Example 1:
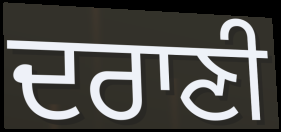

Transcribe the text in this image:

ਦਰਾਣੀ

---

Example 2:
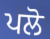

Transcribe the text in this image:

ਪਲੋ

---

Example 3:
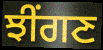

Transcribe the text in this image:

ਝੀਂਗਣ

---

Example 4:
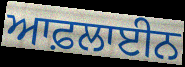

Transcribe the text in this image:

ਆਫ਼ਲਾਈਨ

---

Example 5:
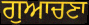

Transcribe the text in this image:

ਗੁਆਚਣਾ